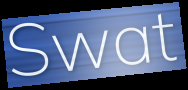
Swat